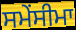
ਸਮੇਂਸੀਮਾ